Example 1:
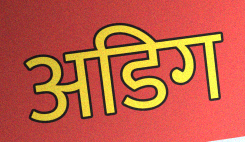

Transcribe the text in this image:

अडिग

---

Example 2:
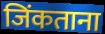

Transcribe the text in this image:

जिंकताना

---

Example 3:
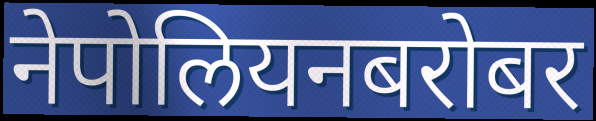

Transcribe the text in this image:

नेपोलियनबरोबर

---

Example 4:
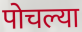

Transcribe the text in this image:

पोचल्या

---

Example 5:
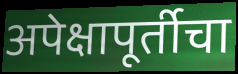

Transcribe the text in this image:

अपेक्षापूर्तीचा